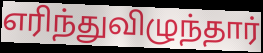
எரிந்துவிழுந்தார்